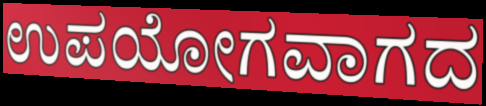
ಉಪಯೋಗವಾಗದ